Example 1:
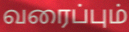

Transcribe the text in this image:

வரைப்பும்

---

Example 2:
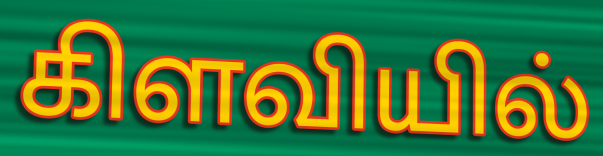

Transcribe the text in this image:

கிளவியில்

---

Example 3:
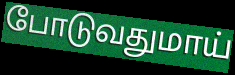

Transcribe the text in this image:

போடுவதுமாய்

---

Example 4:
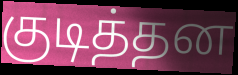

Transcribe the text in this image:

குடித்தன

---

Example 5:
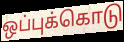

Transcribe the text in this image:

ஒப்புக்கொடு